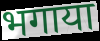
भगाया